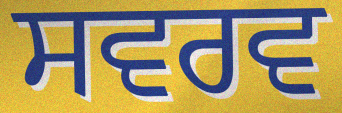
ਸਵਰਵ